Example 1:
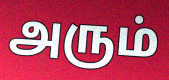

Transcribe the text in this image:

அரும்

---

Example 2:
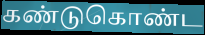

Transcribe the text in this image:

கண்டுகொண்ட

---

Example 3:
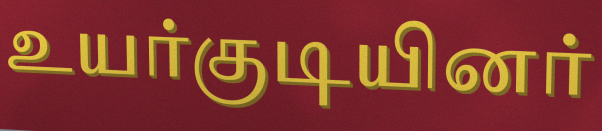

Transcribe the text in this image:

உயர்குடியினர்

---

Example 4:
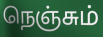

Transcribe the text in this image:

நெஞ்சும்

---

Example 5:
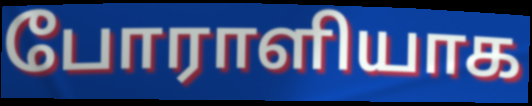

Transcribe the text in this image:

போராளியாக